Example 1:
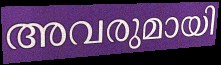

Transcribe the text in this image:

അവരുമായി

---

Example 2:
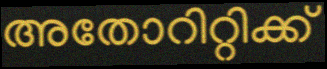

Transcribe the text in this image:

അതോറിറ്റിക്ക്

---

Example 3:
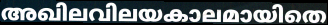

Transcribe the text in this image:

അഖിലവിലയകാലമായിതെ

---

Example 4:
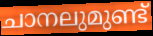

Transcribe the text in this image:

ചാനലുമുണ്ട്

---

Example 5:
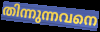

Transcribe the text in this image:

തിന്നുന്നവനെ